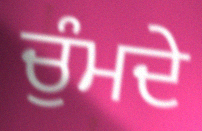
ਚੁੰਮਦੇ